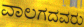
ವಾಲಗದವರು